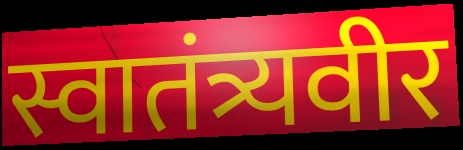
स्वातंत्र्यवीर